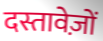
दस्तावेज़ों